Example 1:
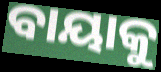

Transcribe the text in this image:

ବାୟାକୁ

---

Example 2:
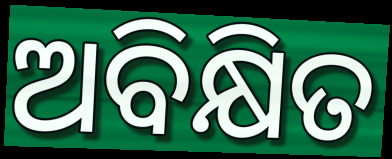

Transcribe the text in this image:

ଅବିକ୍ଷିତ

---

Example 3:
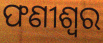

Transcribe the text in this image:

ଫଣୀଶ୍ୱର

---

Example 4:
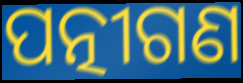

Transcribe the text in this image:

ପତ୍ନୀଗଣ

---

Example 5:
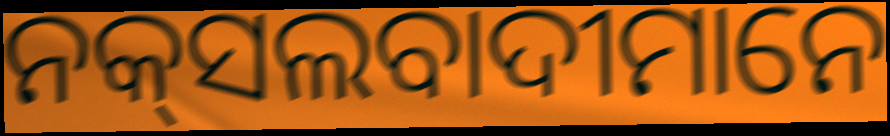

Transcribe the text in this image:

ନକ୍‌ସଲବାଦୀମାନେ